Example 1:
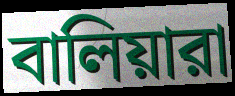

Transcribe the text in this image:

বালিয়ারা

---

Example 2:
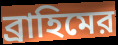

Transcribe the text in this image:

ব্রাহিমের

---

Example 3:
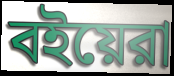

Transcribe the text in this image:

বইয়েরা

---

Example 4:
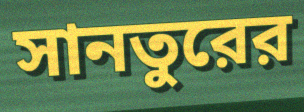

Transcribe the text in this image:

সানতুরের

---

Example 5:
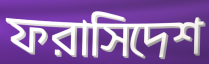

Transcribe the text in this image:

ফরাসিদেশ